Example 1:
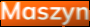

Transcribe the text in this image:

Maszyn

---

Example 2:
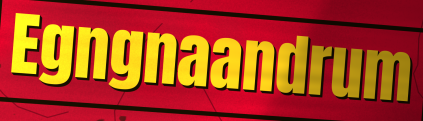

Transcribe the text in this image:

Egngnaandrum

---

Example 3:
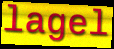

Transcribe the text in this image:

lagel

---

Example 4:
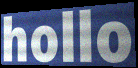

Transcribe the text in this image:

hollo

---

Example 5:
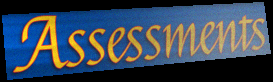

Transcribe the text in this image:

Assessments